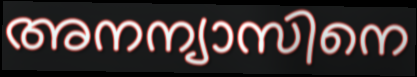
അനന്യാസിനെ